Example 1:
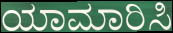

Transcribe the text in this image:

ಯಾಮಾರಿಸಿ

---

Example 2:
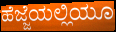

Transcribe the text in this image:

ಹೆಜ್ಜೆಯಲ್ಲಿಯೂ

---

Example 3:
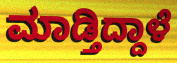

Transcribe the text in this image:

ಮಾಡ್ತಿದ್ದಾಳೆ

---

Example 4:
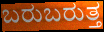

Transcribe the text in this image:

ಬರುಬರುತ್ತ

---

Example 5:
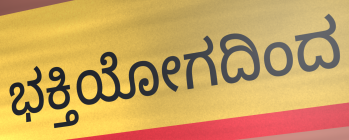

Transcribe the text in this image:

ಭಕ್ತಿಯೋಗದಿಂದ